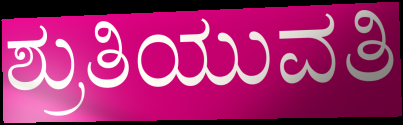
ಶ್ರುತಿಯುವತಿ